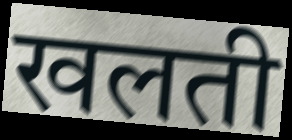
खलती